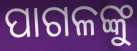
ପାଗଳଙ୍କୁ